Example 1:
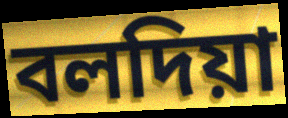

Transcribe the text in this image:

বলদিয়া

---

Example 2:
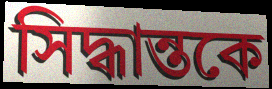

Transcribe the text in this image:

সিদ্ধান্তকে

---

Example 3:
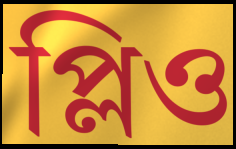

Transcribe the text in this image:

প্লিও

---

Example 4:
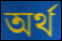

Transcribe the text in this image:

অর্থ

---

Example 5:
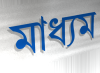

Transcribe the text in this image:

মাধ্যম